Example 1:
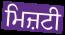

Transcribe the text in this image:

ਮਿਜ਼ਟੀ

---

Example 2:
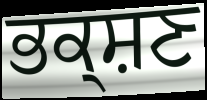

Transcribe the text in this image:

ਭਕ੍ਸ਼ਣ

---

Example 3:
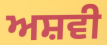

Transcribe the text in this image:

ਅਸ਼ਵੀ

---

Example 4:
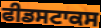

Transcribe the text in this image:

ਫੀਡਸਟਾਕਸ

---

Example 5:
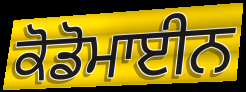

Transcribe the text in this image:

ਕੋਡੋਮਾਈਨ